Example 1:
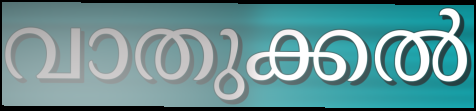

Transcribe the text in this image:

വാതുക്കൽ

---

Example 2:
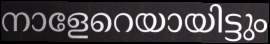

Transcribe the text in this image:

നാളേറെയായിട്ടും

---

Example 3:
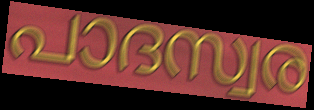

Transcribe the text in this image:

പാദസ്വര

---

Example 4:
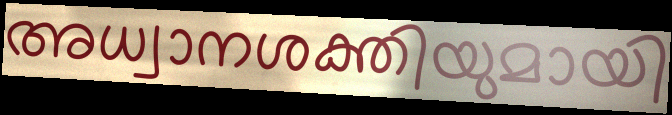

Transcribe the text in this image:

അധ്വാനശക്തിയുമായി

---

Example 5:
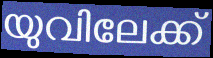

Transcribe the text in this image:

യുവിലേക്ക്